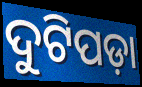
ଦୁଟିପଡ଼ା